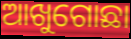
ଆଖୁଗୋଛା